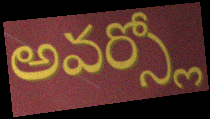
అవర్స్లో